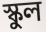
স্কুল